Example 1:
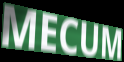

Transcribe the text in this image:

MECUM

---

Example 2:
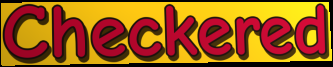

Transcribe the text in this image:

Checkered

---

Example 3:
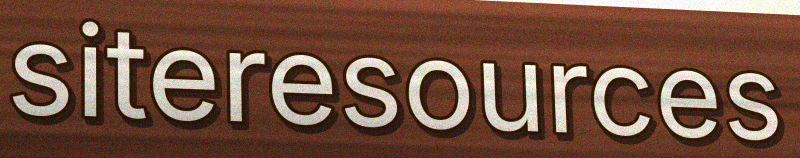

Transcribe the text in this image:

siteresources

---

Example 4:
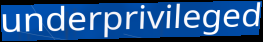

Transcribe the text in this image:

underprivileged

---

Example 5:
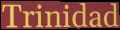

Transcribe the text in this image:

Trinidad